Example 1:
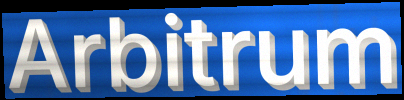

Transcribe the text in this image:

Arbitrum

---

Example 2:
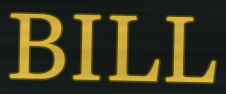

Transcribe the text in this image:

BILL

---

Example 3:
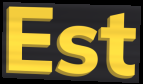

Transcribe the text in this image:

Est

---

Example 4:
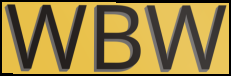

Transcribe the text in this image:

WBW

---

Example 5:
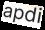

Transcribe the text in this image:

apdi